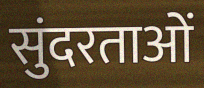
सुंदरताओं